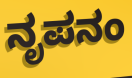
ನೃಪನಂ